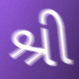
શ્રી